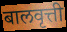
बालवृत्ती